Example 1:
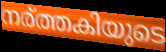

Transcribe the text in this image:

നര്ത്തകിയുടെ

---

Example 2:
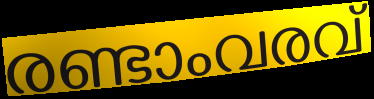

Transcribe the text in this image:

രണ്ടാംവരവ്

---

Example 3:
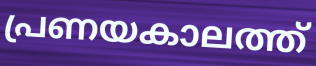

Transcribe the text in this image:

പ്രണയകാലത്ത്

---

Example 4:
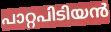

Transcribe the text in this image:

പാറ്റപിടിയൻ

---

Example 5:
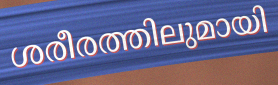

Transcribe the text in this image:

ശരീരത്തിലുമായി